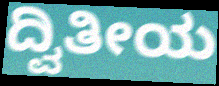
ದ್ವಿತೀಯ